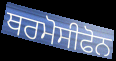
ਥਰਮੋਸੀਫੋਨ